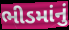
ભીડમાંનું